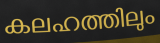
കലഹത്തിലും